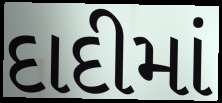
દાદીમાં